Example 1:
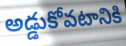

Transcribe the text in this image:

అడ్డుకోవటానికి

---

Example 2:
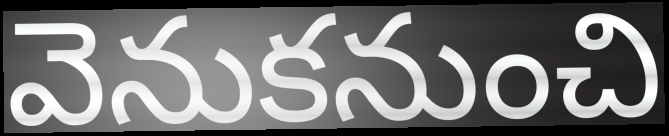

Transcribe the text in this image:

వెనుకనుంచి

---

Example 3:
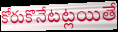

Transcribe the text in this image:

కోరుకొనేటట్లయితే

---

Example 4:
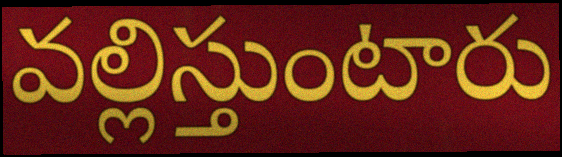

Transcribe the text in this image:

వల్లిస్తుంటారు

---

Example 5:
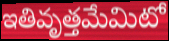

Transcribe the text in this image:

ఇతివృత్తమేమిటో